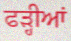
ਫੜ੍ਹੀਆਂ